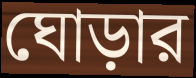
ঘোড়ার